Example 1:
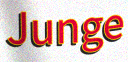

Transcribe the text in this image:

Junge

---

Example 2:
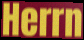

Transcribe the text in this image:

Herrn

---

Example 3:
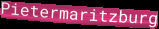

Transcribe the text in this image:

Pietermaritzburg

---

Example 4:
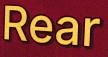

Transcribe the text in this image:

Rear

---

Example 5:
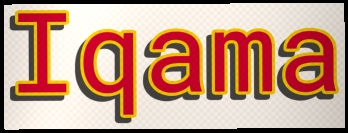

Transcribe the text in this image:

Iqama